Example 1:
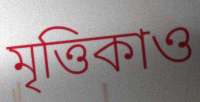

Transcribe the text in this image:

মৃত্তিকাও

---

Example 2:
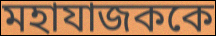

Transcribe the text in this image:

মহাযাজককে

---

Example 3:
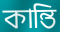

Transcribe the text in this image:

কান্তি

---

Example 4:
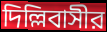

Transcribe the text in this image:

দিল্লিবাসীর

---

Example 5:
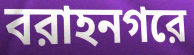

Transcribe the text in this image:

বরাহনগরে